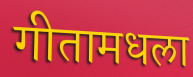
गीतामधला